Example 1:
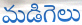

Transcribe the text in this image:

మడిగెలు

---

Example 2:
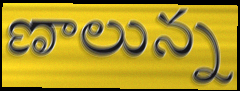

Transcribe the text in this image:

ణాలున్న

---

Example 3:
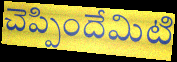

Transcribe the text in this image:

చెప్పిందేమిటి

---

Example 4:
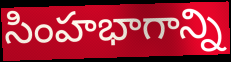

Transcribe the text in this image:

సింహభాగాన్ని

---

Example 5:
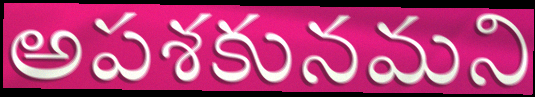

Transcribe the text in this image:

అపశకునమని